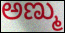
ಅಣ್ಮು